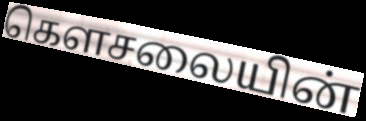
கௌசலையின்